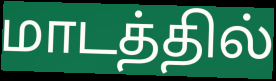
மாடத்தில்